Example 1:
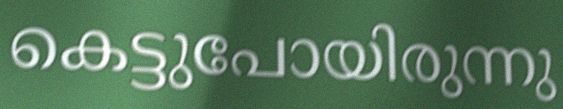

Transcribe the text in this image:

കെട്ടുപോയിരുന്നു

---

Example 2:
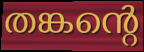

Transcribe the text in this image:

തങ്കന്റെ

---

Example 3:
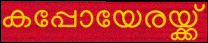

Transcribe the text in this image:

കപ്പോയേരയ്ക്ക്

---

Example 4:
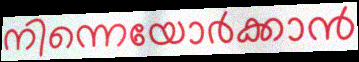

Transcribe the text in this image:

നിന്നെയോർക്കാൻ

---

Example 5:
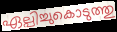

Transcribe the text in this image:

ഏല്പിച്ചുകൊടുത്തു